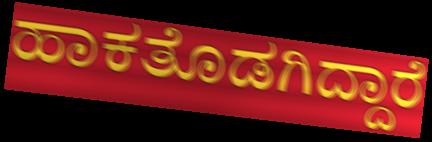
ಹಾಕತೊಡಗಿದ್ದಾರೆ